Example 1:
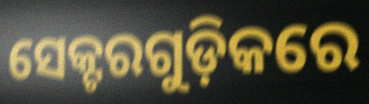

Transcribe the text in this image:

ସେକ୍ଟରଗୁଡ଼ିକରେ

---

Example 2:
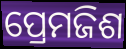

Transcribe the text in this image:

ପ୍ରେମଜିଶ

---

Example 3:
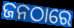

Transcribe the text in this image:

ଜନଠାରେ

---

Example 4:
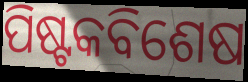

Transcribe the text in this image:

ପିଷ୍ଟକବିଶେଷ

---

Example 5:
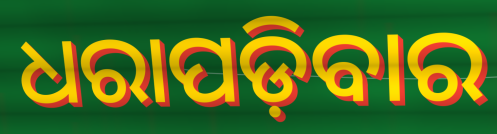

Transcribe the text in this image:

ଧରାପଡ଼ିବାର